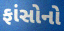
ફાંસોનો